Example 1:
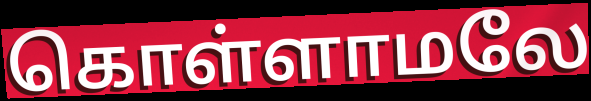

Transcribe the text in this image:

கொள்ளாமலே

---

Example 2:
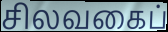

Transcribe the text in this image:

சிலவகைப்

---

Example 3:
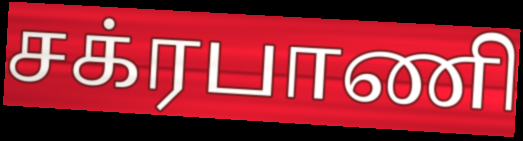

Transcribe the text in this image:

சக்ரபாணி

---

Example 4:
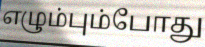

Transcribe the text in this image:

எழும்பும்போது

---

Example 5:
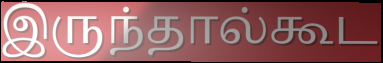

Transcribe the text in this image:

இருந்தால்கூட